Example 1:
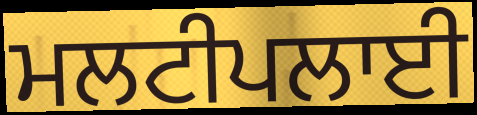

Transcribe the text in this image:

ਮਲਟੀਪਲਾਈ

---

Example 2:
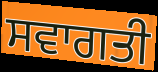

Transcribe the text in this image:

ਸਵਾਗਤੀ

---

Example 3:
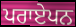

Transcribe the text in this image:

ਪਰਾਏਪਨ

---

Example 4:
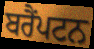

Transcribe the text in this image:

ਬਰੈਂਪਟਨ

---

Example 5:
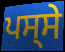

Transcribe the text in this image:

ਪਸ੍ਸੇ